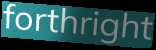
forthright